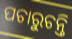
ପଚାରୁଚନ୍ତି